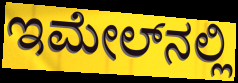
ಇಮೇಲ್‌ನಲ್ಲಿ